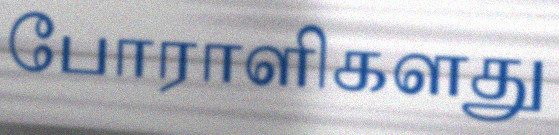
போராளிகளது